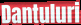
Dantuluri